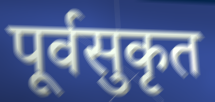
पूर्वसुकृत